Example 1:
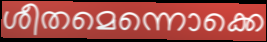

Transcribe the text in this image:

ശീതമെന്നൊക്കെ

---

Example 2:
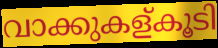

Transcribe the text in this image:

വാക്കുകള്കൂടി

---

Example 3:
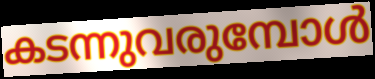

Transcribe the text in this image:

കടന്നുവരുമ്പോൾ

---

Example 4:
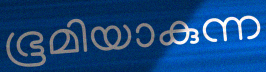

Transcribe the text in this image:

ഭൂമിയാകുന്ന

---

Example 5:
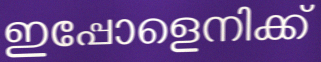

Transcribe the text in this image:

ഇപ്പോളെനിക്ക്